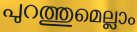
പുറത്തുമെല്ലാം